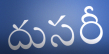
దుసరీ